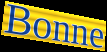
Bonne